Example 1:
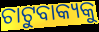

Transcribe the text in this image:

ଚାଟୁବାକ୍ୟକୁ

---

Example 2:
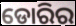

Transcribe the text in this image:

ଡୋରିର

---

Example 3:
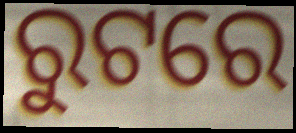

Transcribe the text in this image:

ରୁଟରେ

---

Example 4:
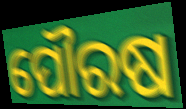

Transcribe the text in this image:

ପୌରଷ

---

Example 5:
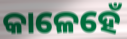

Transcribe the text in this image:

କାଳେହେଁ